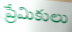
ప్రేమికులు